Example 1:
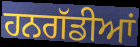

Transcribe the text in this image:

ਹਨਗੱਡੀਆਂ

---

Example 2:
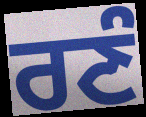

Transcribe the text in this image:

ਰਣੰ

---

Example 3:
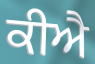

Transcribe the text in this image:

ਕੀਐ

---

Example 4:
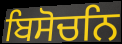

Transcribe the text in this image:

ਬਿਸੋਚਨਿ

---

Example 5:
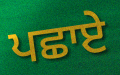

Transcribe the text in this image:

ਪਛਾਏ